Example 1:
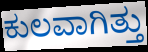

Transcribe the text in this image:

ಕುಲವಾಗಿತ್ತು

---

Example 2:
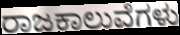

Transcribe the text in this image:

ರಾಜಕಾಲುವೆಗಳು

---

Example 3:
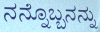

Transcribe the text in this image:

ನನ್ನೊಬ್ಬನನ್ನು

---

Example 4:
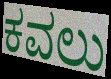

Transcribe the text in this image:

ಕವಲು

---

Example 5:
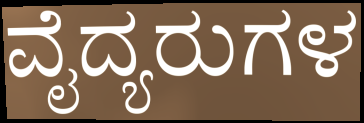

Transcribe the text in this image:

ವೈದ್ಯರುಗಳ